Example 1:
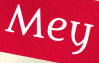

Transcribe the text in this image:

Mey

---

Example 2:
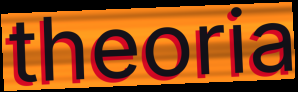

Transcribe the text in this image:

theoria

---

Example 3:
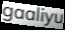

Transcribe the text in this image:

gaaliyu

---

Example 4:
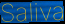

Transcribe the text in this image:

Saliva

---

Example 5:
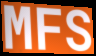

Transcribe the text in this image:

MFS